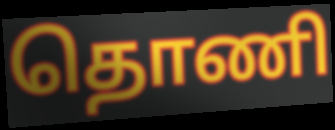
தொணி